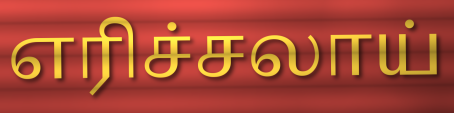
எரிச்சலாய்